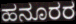
ಹನೂರರ